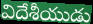
విదేశీయుడు